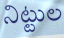
నిట్టుల